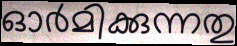
ഓർമിക്കുന്നതു